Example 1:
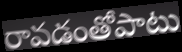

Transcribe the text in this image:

రావడంతోపాటు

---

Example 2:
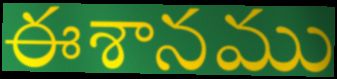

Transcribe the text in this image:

ఈశానము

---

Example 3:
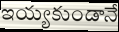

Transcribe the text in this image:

ఇయ్యకుండానే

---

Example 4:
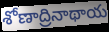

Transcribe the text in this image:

శోణాద్రినాథాయ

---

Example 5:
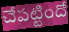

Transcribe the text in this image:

చేపట్టిందో